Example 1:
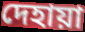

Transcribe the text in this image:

দেহায়া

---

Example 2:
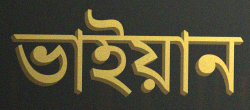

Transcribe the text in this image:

ভাইয়ান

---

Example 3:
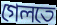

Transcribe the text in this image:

গেলতে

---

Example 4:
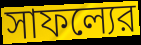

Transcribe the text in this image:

সাফল্যের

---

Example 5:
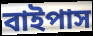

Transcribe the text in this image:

বাইপাস